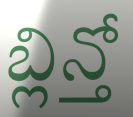
బ్లిన్తో